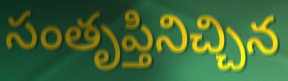
సంతృప్తినిచ్చిన